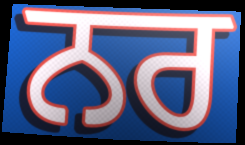
ਨਰ